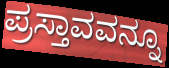
ಪ್ರಸ್ತಾವವನ್ನೂ